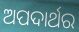
ଅପଦାର୍ଥର